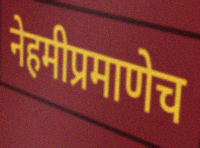
नेहमीप्रमाणेच